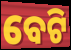
ବେଟି